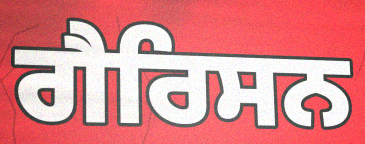
ਗੈਰਿਸਨ